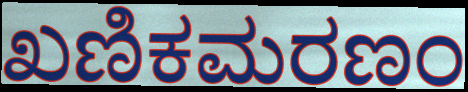
ಖಣಿಕಮರಣಂ